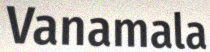
Vanamala